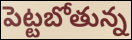
పెట్టబోతున్న